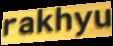
rakhyu